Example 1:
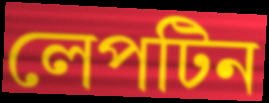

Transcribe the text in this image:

লেপটিন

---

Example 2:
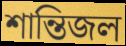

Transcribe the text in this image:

শান্তিজল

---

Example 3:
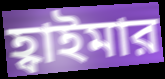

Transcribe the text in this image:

হ্বাইমার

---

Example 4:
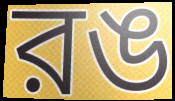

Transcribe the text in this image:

রঙ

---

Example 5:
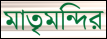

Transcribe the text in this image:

মাতৃমন্দির